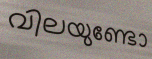
വിലയുണ്ടോ